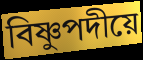
বিষ্ণুপদীয়ে